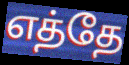
எத்தே